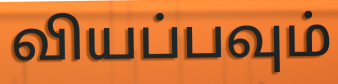
வியப்பவும்